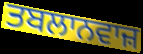
ਤਬਲਾਨਵਾਜ਼